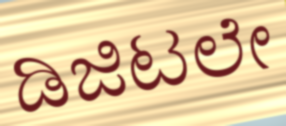
ಡಿಜಿಟಲೇ